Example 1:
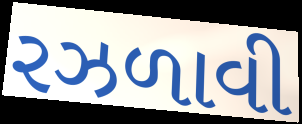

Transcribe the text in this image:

રઝળાવી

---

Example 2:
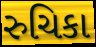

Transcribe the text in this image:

રુચિકા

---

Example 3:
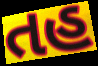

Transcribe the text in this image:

તહ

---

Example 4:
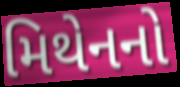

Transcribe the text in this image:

મિથેનનો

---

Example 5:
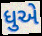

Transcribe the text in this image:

ધુએ